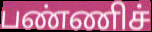
பண்ணிச்